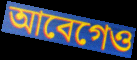
আবেগেও